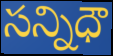
సన్నిధౌ